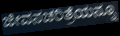
ಜೀವನಚರಿತ್ರೆಯನ್ನೂ